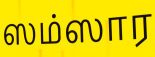
ஸம்ஸார